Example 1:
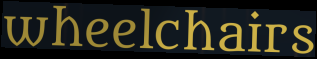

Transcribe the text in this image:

wheelchairs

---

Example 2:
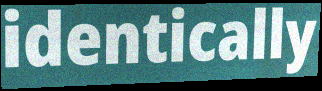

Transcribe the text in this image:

identically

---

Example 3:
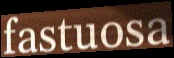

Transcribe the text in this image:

fastuosa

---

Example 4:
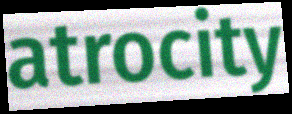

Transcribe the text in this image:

atrocity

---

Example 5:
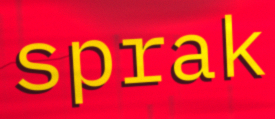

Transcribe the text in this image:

sprak